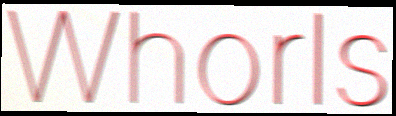
Whorls